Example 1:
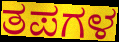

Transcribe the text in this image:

ತಪಗಳ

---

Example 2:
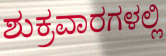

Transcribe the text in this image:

ಶುಕ್ರವಾರಗಳಲ್ಲಿ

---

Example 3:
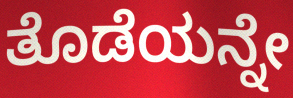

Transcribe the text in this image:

ತೊಡೆಯನ್ನೇ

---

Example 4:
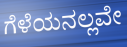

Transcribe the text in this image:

ಗೆಳೆಯನಲ್ಲವೇ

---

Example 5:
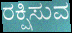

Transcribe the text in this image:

ರಕ್ಷಿಸುವ